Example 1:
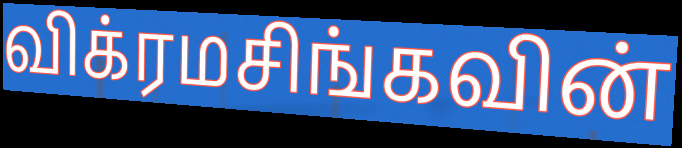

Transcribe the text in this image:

விக்ரமசிங்கவின்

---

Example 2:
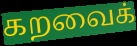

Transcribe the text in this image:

கறவைக்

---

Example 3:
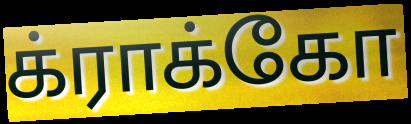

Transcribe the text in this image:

க்ராக்கோ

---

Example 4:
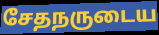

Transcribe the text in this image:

சேதநருடைய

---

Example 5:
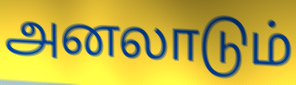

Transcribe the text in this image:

அனலாடும்